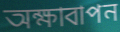
অক্ষাবাপন